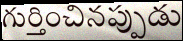
గుర్తించినప్పుడు